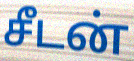
சீடன்